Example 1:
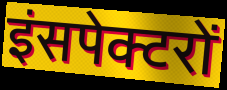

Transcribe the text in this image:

इंसपेक्टरों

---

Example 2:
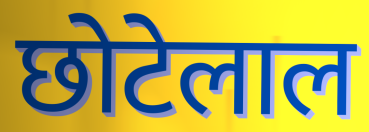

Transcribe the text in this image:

छोटेलाल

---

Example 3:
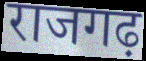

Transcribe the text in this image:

राजगढ़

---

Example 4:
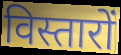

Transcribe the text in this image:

विस्तारों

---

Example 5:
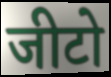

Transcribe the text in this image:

जीटो